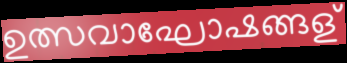
ഉത്സവാഘോഷങ്ങള്